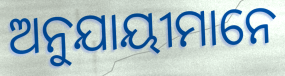
ଅନୁଯାୟୀମାନେ